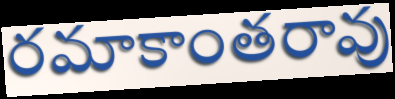
రమాకాంతరావు